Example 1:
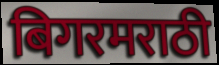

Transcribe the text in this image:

बिगरमराठी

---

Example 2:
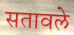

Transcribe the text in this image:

सतावले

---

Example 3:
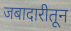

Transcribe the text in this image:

जबादारीतून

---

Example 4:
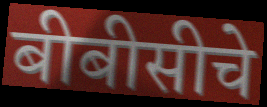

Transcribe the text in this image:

बीबीसीचे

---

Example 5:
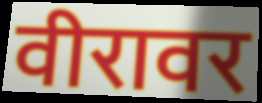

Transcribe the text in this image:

वीरावर